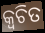
କ୍ବଚିତ